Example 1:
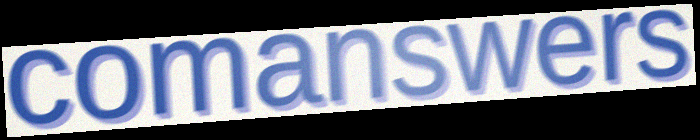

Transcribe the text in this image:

comanswers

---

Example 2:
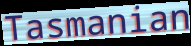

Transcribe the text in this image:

Tasmanian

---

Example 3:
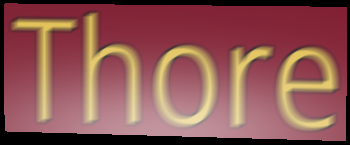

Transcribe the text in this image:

Thore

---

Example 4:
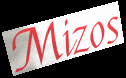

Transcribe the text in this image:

Mizos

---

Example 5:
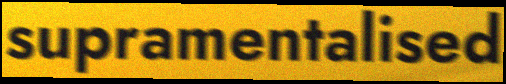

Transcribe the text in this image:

supramentalised